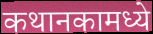
कथानकामध्ये